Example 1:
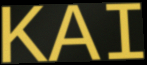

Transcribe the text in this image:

KAI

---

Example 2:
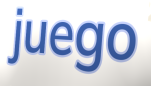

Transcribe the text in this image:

juego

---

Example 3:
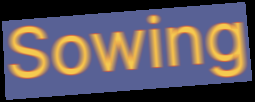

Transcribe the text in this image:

Sowing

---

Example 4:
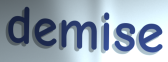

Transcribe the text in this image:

demise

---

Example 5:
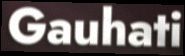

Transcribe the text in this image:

Gauhati